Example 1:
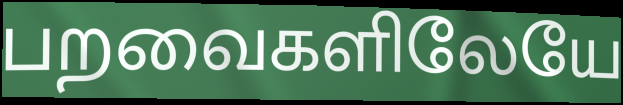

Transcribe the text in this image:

பறவைகளிலேயே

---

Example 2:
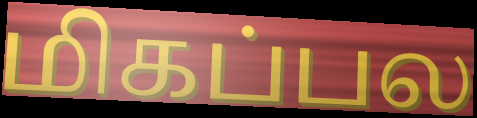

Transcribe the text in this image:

மிகப்பல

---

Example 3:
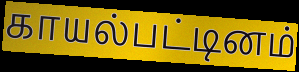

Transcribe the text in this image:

காயல்பட்டினம்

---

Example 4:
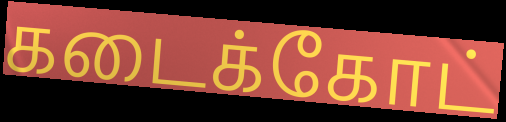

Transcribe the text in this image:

கடைக்கோட்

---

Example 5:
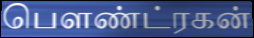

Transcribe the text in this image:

பௌண்ட்ரகன்